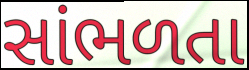
સાંભળતા